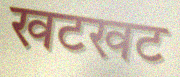
खटखट